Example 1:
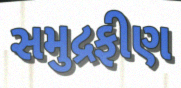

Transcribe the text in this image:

સમુદ્રફીણ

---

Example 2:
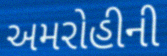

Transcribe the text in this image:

અમરોહીની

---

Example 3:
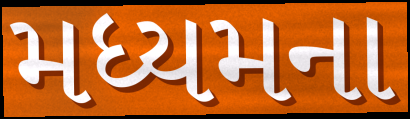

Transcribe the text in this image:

મધ્યમના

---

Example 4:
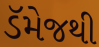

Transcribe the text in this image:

ડૅમેજથી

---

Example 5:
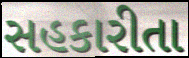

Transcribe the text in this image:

સહકારીતા